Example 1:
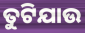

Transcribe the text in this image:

ତୁଟିଯାଉ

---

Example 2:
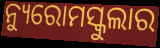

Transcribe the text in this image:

ନ୍ୟୁରୋମସ୍କୁଲାର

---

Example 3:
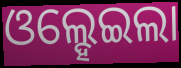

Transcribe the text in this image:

ଓଲ୍ହେଇଲା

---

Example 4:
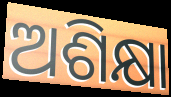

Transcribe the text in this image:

ଅଶିକ୍ଷା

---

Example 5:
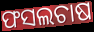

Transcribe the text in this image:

ଫସଲଚାଷ